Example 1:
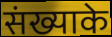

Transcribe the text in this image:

संख्याके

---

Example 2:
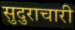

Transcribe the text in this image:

सुदुराचारी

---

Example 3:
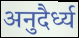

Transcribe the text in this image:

अनुदैर्ध्य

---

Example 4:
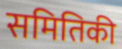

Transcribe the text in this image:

समितिकी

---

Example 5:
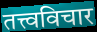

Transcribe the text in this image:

तत्त्वविचार